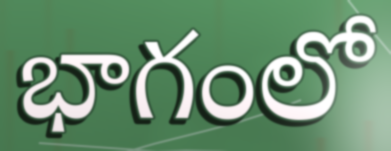
భాగంలో